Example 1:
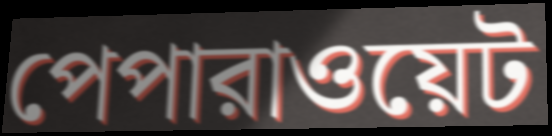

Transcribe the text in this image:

পেপারাওয়েট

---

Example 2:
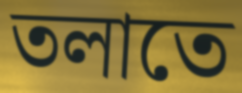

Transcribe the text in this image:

তলাতে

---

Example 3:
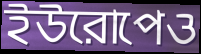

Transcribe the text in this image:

ইউরোপেও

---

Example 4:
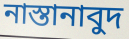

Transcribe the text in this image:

নাস্তানাবুদ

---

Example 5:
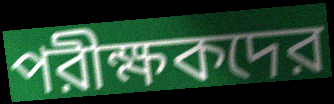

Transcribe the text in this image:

পরীক্ষকদের